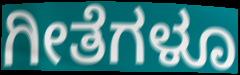
ಗೀತೆಗಳೂ